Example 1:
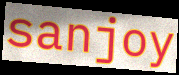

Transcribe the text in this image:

sanjoy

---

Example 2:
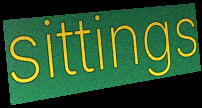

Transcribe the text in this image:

sittings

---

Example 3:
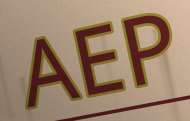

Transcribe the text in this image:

AEP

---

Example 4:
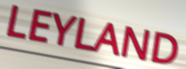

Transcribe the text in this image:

LEYLAND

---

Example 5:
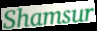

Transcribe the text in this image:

Shamsur